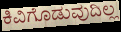
ಕಿವಿಗೊಡುವುದಿಲ್ಲ